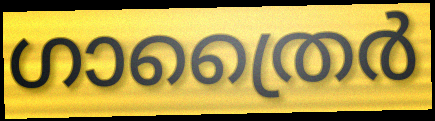
ഗാത്രൈർ